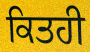
ਕਿਤਹੀ